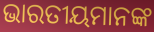
ଭାରତୀୟମାନଙ୍କ